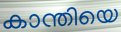
കാന്തിയെ